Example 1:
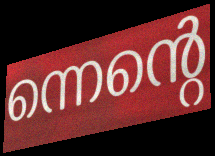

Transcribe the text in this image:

ന്നെന്റെ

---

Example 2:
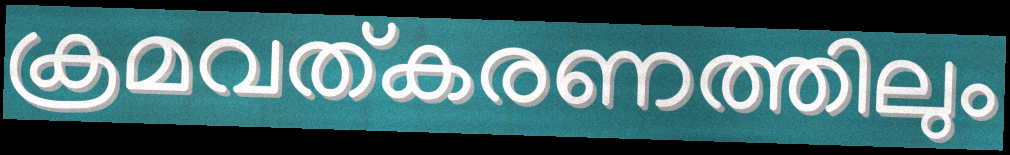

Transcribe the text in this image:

ക്രമവത്കരണത്തിലും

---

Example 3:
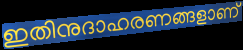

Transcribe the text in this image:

ഇതിനുദാഹരണങ്ങളാണ്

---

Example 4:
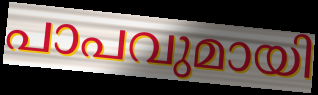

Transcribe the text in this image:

പാപവുമായി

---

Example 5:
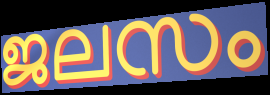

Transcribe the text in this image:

ജലസം